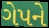
ગેપને